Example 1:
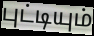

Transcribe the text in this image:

புட்டியும்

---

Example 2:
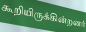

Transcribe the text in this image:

கூறியிருக்கின்றனர்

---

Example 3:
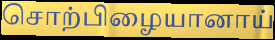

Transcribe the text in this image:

சொற்பிழையானாய்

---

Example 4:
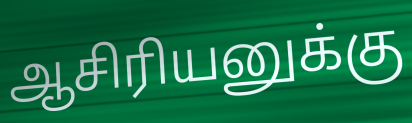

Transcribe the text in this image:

ஆசிரியனுக்கு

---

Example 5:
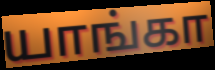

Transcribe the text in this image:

யாங்கா